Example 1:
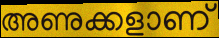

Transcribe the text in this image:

അണുക്കളാണ്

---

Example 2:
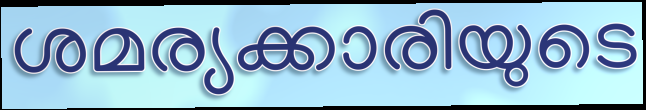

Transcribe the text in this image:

ശമര്യക്കാരിയുടെ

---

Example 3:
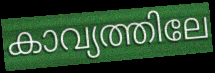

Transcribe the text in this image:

കാവ്യത്തിലേ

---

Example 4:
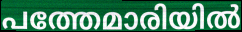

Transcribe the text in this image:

പത്തേമാരിയിൽ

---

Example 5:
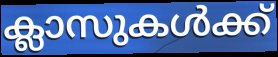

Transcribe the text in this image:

ക്ലാസുകൾക്ക്